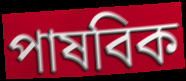
পাষবিক